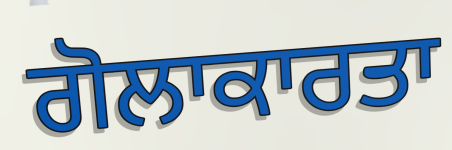
ਗੋਲਾਕਾਰਤਾ